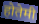
होतेमी